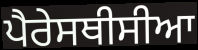
ਪੈਰੇਸਥੀਸੀਆ